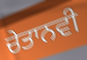
ਚੇਤਾਨਵੀ